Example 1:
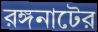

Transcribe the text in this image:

রঙ্গনাটের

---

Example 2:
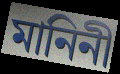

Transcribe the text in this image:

মানিনী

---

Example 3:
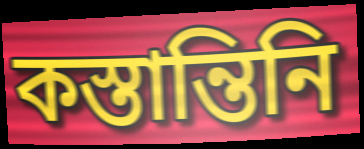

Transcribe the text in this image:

কস্তান্তিনি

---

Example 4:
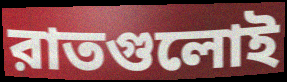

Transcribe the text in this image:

রাতগুলোই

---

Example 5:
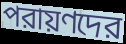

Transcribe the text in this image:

পরায়ণদের